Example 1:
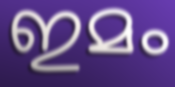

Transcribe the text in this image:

ഇമം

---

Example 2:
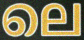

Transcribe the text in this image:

ലെ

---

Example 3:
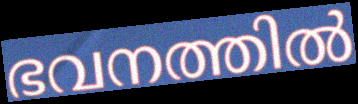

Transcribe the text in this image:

ഭവനത്തിൽ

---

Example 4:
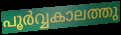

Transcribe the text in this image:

പൂർവ്വകാലത്തു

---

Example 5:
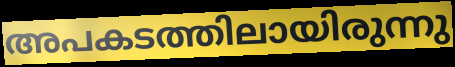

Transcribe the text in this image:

അപകടത്തിലായിരുന്നു